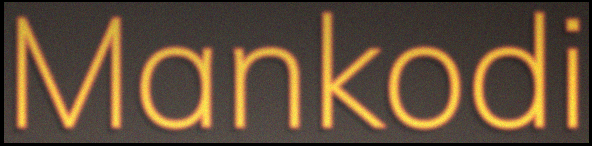
Mankodi